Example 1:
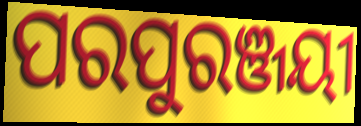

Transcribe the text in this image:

ପରପୁରଞ୍ଜୟୀ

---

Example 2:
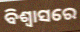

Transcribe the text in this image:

ବିଶ୍ବାସରେ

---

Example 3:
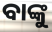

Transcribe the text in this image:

ବାଙ୍କୁ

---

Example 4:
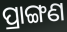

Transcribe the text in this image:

ପ୍ରାଙ୍ଗଣ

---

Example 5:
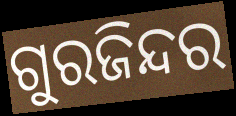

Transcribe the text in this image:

ଗୁରଜିନ୍ଦର